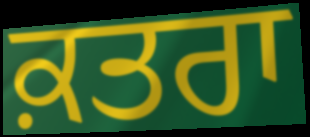
ਕ਼ਤਰਾ